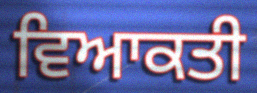
ਵਿਆਕਤੀ